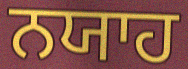
ਨਯਾਹ